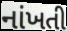
નાંખતી